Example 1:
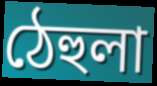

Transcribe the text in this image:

ঠেহুলা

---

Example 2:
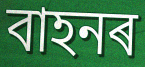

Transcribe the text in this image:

বাহনৰ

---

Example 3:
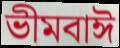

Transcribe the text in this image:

ভীমবাঈ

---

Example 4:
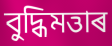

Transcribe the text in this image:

বুদ্ধিমত্তাৰ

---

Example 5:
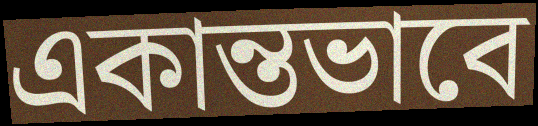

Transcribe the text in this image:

একান্তভাবে